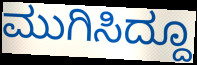
ಮುಗಿಸಿದ್ದೂ